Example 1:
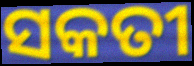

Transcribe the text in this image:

ସକତୀ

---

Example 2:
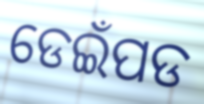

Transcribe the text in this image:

ଡେଇଁପଡ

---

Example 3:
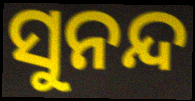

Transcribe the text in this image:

ସୁନନ୍ଦ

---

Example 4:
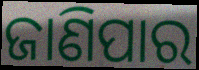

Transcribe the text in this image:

ଜାଣିପାର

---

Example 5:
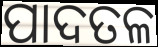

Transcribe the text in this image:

ପାଦତଳ